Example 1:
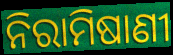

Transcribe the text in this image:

ନିରାମିଷାଣୀ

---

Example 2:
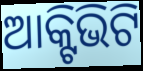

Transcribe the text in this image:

ଆକ୍ଟିଭିଟି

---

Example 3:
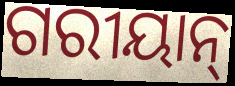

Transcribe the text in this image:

ଗରୀୟାନ୍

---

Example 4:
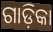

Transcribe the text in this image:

ଗାଡ଼ିକା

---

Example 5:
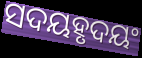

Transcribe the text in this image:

ସଦୟହୃଦୟଂ